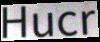
Hucr